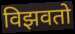
विझवतो